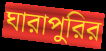
ঘারাপুরির